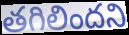
తగిలిందని